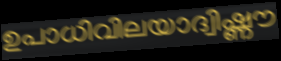
ഉപാധിവിലയാദ്വിഷ്ണൗ